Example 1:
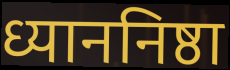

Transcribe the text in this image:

ध्याननिष्ठा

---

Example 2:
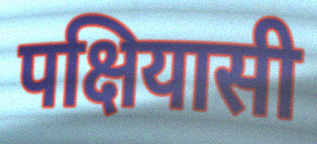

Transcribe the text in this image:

पक्षियासी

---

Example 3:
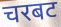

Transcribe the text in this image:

चरबट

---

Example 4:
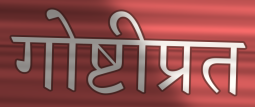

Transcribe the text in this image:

गोष्टीप्रत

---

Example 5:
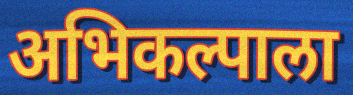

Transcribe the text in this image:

अभिकल्पाला